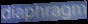
diaphragm